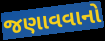
જણાવવાનો